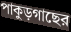
পাকুড়গাছের